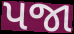
પજા